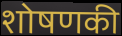
शोषणकी